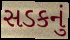
સડકનું